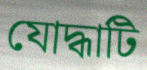
যোদ্ধাটি